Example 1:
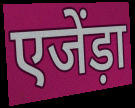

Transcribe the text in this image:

एजेंड़ा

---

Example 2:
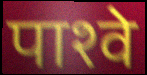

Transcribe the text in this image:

पाश्वे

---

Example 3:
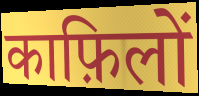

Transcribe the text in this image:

काफ़िलों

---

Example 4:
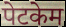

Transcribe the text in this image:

पेटकेम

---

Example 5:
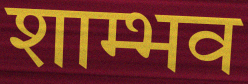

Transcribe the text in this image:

शाम्भव